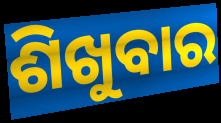
ଶିଖୁବାର